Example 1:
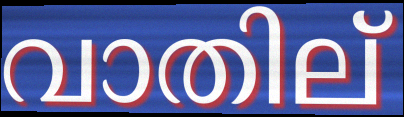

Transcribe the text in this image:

വാതില്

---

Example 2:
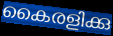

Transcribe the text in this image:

കൈരളിക്കു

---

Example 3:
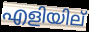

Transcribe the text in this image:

എളിയില്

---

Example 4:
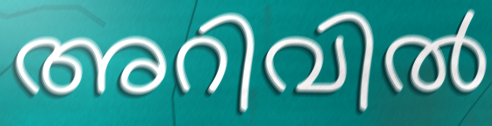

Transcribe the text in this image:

അറിവിൽ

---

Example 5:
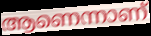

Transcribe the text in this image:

ആണെന്നാണ്